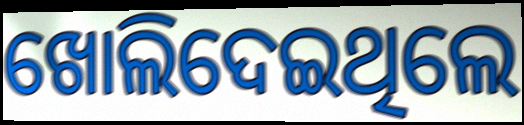
ଖୋଲିଦେଇଥିଲେ